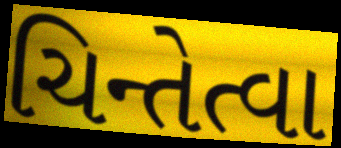
ચિન્તેત્વા